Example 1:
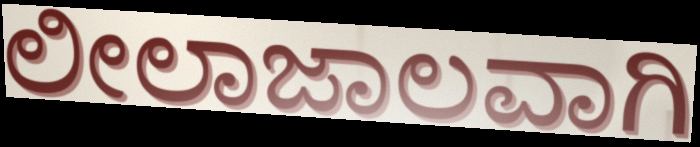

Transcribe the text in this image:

ಲೀಲಾಜಾಲವಾಗಿ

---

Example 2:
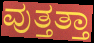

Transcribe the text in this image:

ವುತ್ತತ್ತಾ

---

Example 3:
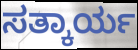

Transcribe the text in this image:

ಸತ್ಕಾರ್ಯ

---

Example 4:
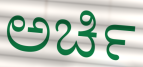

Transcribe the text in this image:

ಅರ್ಚಿ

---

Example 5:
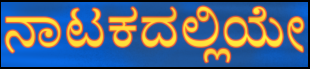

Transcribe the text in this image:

ನಾಟಕದಲ್ಲಿಯೇ